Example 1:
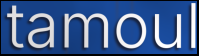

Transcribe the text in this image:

tamoul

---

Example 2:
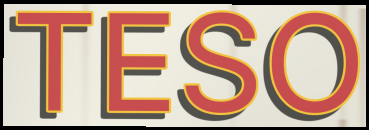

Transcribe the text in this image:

TESO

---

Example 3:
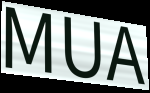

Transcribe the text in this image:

MUA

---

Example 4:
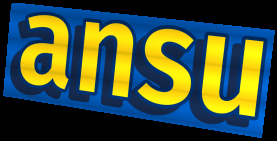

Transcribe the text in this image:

ansu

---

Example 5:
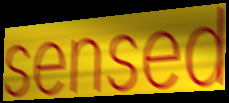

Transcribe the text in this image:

sensed